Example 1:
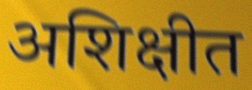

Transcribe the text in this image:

अशिक्षीत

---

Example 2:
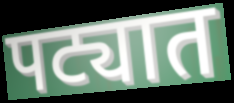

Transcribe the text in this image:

पट्यात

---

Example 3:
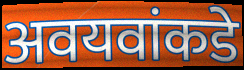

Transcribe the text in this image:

अवयवांकडे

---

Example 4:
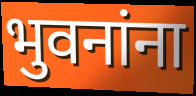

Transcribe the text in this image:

भुवनांना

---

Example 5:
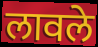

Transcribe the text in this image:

लावले